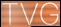
TVG